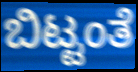
ಬಿಟ್ಟಂತೆ